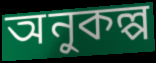
অনুকল্প